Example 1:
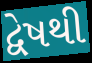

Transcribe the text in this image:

દ્વેષથી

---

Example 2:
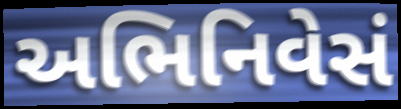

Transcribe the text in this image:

અભિનિવેસં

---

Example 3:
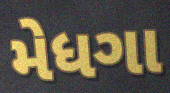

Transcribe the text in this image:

મેધગા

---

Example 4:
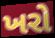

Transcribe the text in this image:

ખરો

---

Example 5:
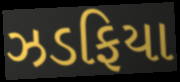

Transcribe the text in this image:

ઝડફિયા